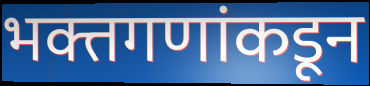
भक्तगणांकडून